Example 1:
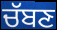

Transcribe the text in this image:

ਚੱਬਣ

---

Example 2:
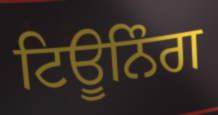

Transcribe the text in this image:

ਟਿਊਨਿੰਗ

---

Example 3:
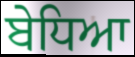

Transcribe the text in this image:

ਬੇਧਿਆ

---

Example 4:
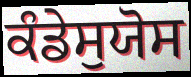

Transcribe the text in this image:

ਕੰਡੇਸੁਯੋਸ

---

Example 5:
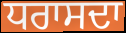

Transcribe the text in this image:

ਧਰਾਸਦਾ